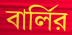
বার্লির